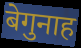
बेगुनाह